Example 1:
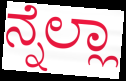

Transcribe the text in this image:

ನ್ನೆಲ್ಲಾ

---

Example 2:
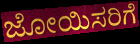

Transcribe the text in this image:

ಜೋಯಿಸರಿಗೆ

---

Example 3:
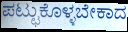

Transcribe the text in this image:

ಪಟ್ಟುಕೊಳ್ಳಬೇಕಾದ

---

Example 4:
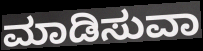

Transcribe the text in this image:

ಮಾಡಿಸುವಾ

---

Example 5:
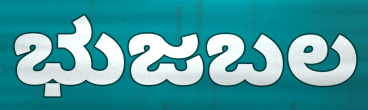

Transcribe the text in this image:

ಭುಜಬಲ